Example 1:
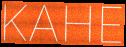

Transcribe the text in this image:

KAHE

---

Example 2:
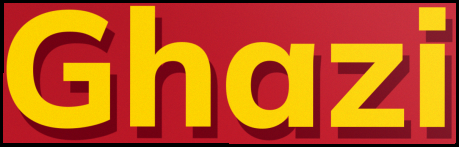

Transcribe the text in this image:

Ghazi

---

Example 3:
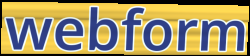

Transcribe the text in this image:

webform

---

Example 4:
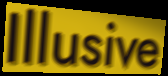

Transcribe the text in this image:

Illusive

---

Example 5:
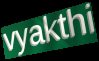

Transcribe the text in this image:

vyakthi